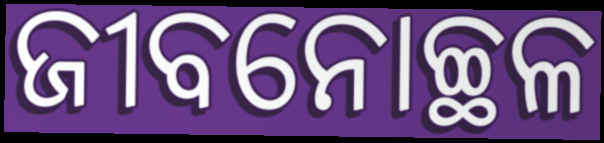
ଜୀବନୋଚ୍ଛଳ